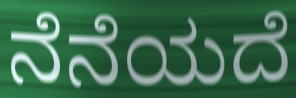
ನೆನೆಯದೆ